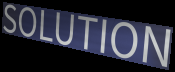
SOLUTION